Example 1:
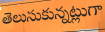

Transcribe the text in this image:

తెలుసుకున్నట్లుగా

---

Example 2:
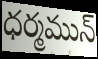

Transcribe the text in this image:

ధర్మమున్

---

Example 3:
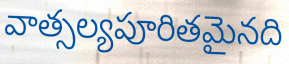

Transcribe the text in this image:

వాత్సల్యపూరితమైనది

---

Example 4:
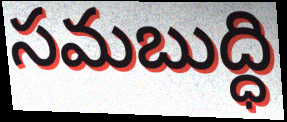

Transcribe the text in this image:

సమబుద్ధి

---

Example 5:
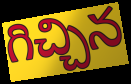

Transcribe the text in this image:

గిచ్చిన